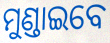
ମୁଣ୍ଡାଇବେ